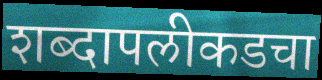
शब्दापलीकडचा